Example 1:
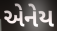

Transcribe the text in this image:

એનેય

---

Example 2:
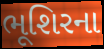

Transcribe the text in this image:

ભૂશિરના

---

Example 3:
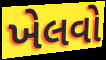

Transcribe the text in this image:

ખેલવો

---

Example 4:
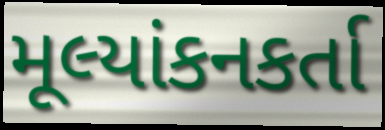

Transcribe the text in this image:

મૂલ્યાંકનકર્તા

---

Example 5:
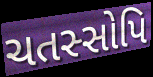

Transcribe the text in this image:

ચતસ્સોપિ